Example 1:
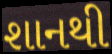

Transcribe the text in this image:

શાનથી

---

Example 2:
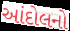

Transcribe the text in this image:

આંદોલનો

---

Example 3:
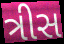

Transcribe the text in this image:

ત્રીસ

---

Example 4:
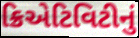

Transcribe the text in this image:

ક્રિએટિવિટીનું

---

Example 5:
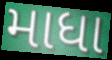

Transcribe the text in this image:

માધા